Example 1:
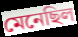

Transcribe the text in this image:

মেনেছিল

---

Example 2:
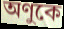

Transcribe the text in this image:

অণুকে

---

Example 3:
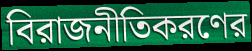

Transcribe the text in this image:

বিরাজনীতিকরণের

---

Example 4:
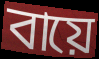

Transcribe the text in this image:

বায়ে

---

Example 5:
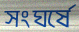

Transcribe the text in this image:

সংঘর্ষে